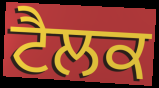
ਟੈਲਕ